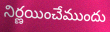
నిర్ణయించేముందు